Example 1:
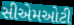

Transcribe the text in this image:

સીએમઓટી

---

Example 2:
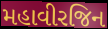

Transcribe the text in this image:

મહાવીરજિન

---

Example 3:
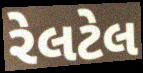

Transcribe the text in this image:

રેલટેલ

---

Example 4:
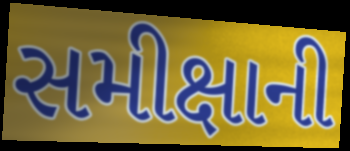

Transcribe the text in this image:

સમીક્ષાની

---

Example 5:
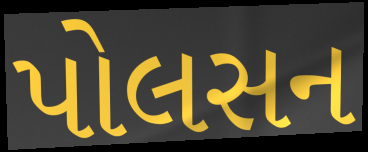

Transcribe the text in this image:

પોલસન